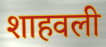
शाहवली